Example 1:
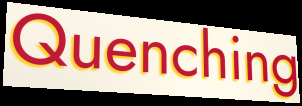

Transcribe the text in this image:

Quenching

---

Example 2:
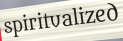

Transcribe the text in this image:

spiritualized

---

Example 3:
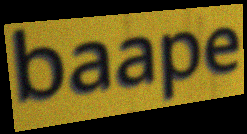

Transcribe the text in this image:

baape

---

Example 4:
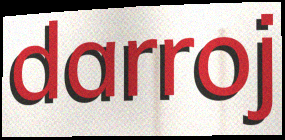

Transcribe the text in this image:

darroj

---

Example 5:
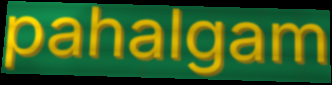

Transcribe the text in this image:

pahalgam